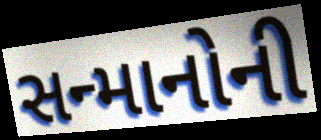
સન્માનોની